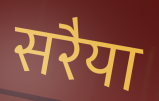
सरैया